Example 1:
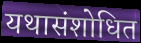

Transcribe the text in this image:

यथासंशोधित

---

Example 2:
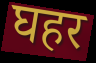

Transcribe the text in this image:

घहर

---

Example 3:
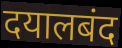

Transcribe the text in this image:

दयालबंद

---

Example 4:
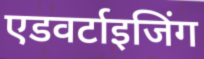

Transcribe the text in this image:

एडवर्टाइजिंग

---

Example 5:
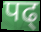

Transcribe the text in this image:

पढ्